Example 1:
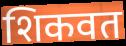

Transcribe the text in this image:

शिकवत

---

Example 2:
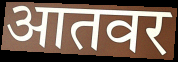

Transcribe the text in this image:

आतवर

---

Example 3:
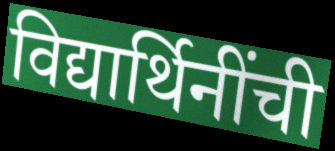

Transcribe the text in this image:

विद्यार्थिनींची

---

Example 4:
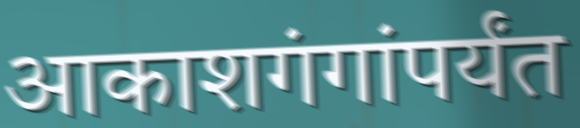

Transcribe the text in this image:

आकाशगंगांपर्यंत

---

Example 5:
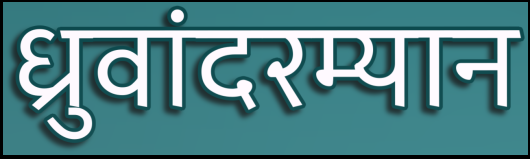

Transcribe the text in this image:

ध्रुवांदरम्यान